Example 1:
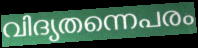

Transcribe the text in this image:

വിദ്യതന്നെപരം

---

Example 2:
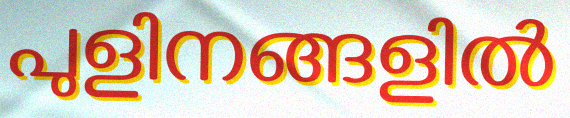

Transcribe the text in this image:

പുളിനങ്ങളിൽ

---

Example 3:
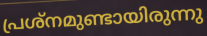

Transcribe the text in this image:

പ്രശ്നമുണ്ടായിരുന്നു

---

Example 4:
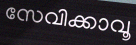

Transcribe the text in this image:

സേവിക്കാവൂ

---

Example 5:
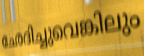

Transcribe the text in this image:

ഛേദിച്ചുവെങ്കിലും